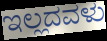
ಇಲ್ಲದವಳು